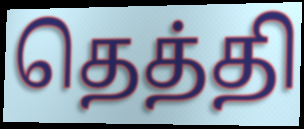
தெத்தி